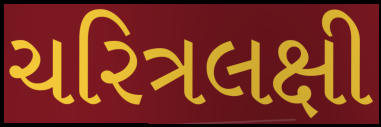
ચરિત્રલક્ષી